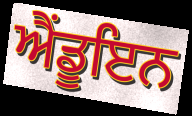
ਐਂਡੂਇਨ